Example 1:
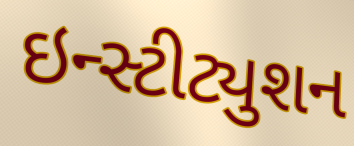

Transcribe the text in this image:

ઇન્સ્ટીટ્યુશન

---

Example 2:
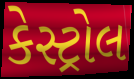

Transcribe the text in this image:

કેસ્ટ્રોલ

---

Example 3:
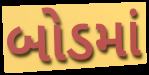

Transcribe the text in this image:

બોડમાં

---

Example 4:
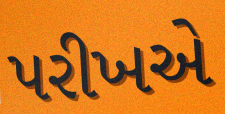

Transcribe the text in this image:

પરીખએ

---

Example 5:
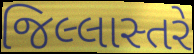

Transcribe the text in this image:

જિલ્લાસ્તરે